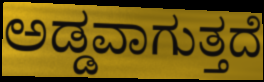
ಅಡ್ಡವಾಗುತ್ತದೆ